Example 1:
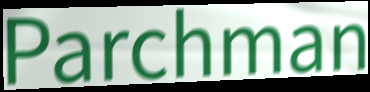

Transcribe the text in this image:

Parchman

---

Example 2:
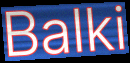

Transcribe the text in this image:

Balki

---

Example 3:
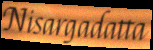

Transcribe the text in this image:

Nisargadatta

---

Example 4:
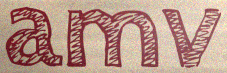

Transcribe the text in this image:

amv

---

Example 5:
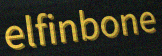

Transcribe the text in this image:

elfinbone